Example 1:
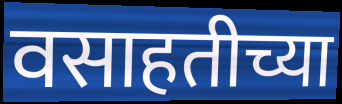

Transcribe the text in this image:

वसाहतीच्या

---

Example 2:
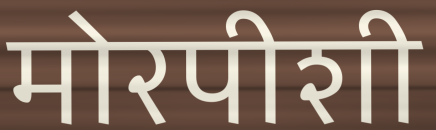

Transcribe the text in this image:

मोरपीशी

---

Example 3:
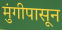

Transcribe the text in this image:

मुंगीपासून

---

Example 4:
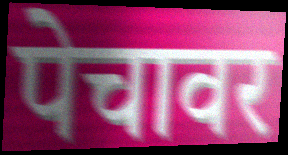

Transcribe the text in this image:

पेचावर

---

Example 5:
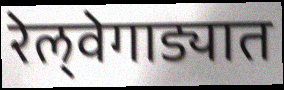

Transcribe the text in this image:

रेल्वेगाड्यात